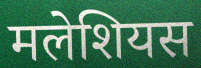
मलेशियस